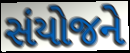
સંયોજને